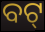
ବଟ୍